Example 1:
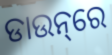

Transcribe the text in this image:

ଡାଉନ୍‌ରେ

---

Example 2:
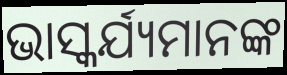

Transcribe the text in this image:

ଭାସ୍କର୍ଯ୍ୟମାନଙ୍କ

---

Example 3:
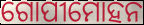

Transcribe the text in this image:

ଗୋପୀମୋହନ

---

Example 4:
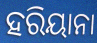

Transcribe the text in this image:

ହରିୟାନା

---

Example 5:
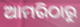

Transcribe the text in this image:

ଆମରିଠାରୁ